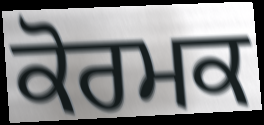
ਕੋਰਮਕ